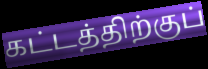
கட்டத்திற்குப்